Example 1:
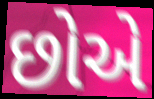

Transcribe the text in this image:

છોએ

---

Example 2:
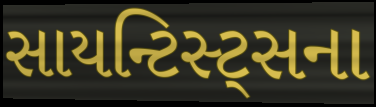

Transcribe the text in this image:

સાયન્ટિસ્ટ્સના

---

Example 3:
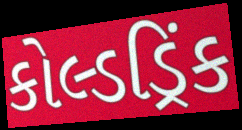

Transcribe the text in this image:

કોલ્ડડ્રિંક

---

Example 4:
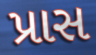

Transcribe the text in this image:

પ્રાસ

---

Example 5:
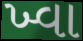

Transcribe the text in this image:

ખ્વા